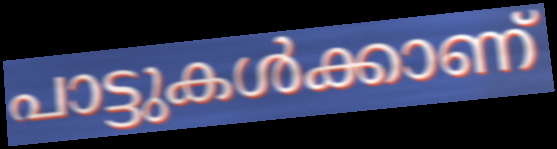
പാട്ടുകൾക്കാണ്